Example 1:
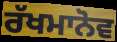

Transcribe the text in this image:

ਰੱਖਮਾਨੋਵ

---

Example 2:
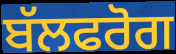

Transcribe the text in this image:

ਬੱਲਫਰੋਗ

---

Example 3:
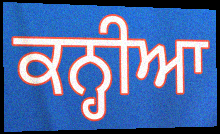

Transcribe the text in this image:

ਕਨ੍ਹੀਆ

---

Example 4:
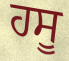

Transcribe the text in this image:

ਹਸੂ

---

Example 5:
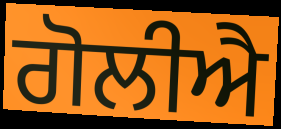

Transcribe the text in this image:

ਗੋਲੀਐ